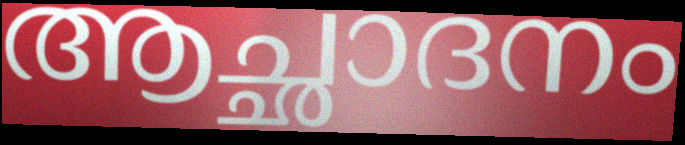
ആച്ഛാദനം